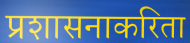
प्रशासनाकरिता